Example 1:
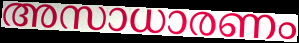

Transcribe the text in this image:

അസാധാരണം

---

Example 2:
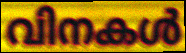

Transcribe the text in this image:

വിനകൾ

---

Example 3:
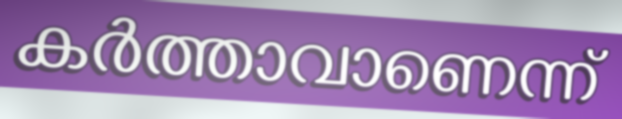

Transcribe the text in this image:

കർത്താവാണെന്ന്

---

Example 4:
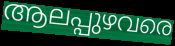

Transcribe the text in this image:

ആലപ്പുഴവരെ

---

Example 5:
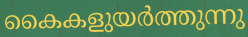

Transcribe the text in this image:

കൈകളുയർത്തുന്നു